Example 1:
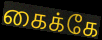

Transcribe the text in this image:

கைக்கே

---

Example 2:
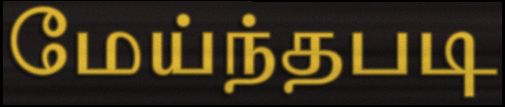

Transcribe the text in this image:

மேய்ந்தபடி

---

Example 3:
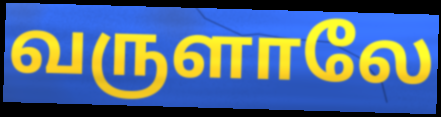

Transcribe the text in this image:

வருளாலே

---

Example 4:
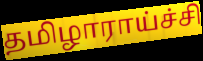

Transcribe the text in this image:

தமிழாராய்ச்சி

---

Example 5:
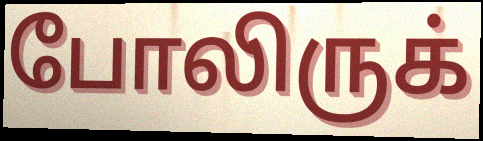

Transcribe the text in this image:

போலிருக்